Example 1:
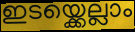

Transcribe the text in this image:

ഇടയ്ക്കെല്ലാം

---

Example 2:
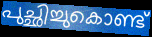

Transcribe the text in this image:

പുച്ഛിച്ചുകൊണ്ട്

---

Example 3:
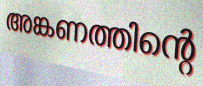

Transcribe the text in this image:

അങ്കണത്തിന്റെ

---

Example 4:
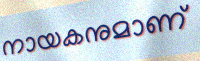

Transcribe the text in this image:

നായകനുമാണ്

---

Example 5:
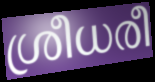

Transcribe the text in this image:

ശ്രീധരീ